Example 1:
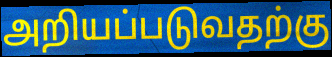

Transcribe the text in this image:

அறியப்படுவதற்கு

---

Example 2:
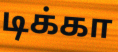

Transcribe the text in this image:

டிக்கா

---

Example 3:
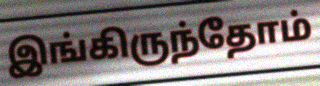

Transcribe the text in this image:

இங்கிருந்தோம்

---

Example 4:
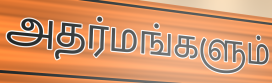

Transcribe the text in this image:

அதர்மங்களும்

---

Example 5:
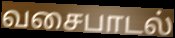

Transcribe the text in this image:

வசைபாடல்